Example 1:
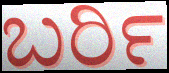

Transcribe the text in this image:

ಬರ್ರಿ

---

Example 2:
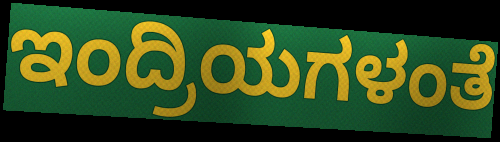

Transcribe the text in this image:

ಇಂದ್ರಿಯಗಳಂತೆ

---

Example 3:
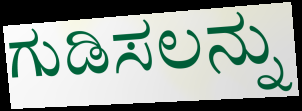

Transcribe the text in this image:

ಗುಡಿಸಲನ್ನು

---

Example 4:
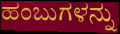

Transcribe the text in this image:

ಹಂಬುಗಳನ್ನು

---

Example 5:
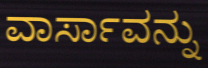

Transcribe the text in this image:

ವಾರ್ಸಾವನ್ನು